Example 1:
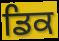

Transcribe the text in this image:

ਡਿਕ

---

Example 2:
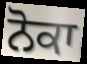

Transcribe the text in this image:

ਨੋਕਾ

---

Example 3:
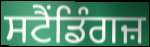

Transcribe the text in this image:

ਸਟੈਂਡਿੰਗਜ਼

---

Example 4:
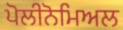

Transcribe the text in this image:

ਪੋਲੀਨੋਮਿਅਲ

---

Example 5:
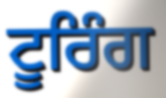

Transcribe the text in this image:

ਟੂਰਿੰਗ